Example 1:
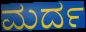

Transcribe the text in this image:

ಮರ್ದ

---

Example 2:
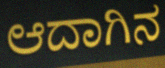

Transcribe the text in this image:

ಆದಾಗಿನ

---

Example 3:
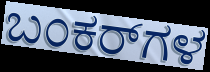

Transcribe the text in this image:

ಬಂಕರ್‌ಗಳ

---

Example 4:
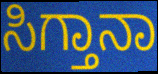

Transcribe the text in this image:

ಸಿಗ್ತಾನಾ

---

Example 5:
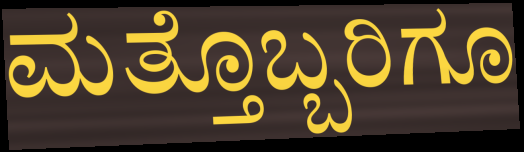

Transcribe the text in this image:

ಮತ್ತೊಬ್ಬರಿಗೂ